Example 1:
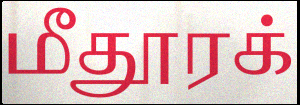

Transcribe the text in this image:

மீதூரக்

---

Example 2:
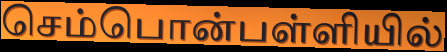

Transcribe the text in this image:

செம்பொன்பள்ளியில்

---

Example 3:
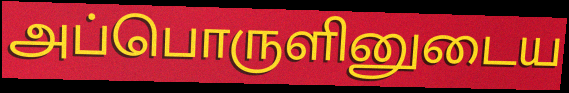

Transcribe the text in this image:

அப்பொருளினுடைய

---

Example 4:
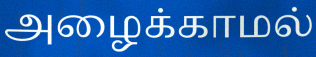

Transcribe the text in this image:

அழைக்காமல்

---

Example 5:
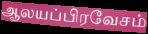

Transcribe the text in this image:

ஆலயப்பிரவேசம்